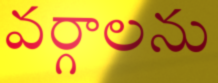
వర్గాలను